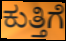
ಕುತ್ತಿಗೆ